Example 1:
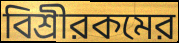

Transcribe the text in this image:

বিশ্রীরকমের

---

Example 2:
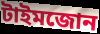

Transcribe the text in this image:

টাইমজোন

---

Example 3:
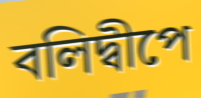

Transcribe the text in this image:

বলিদ্বীপে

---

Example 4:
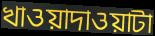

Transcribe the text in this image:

খাওয়াদাওয়াটা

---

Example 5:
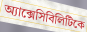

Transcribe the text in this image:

অ্যাক্সেসিবিলিটিকে